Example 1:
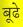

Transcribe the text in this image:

बूढे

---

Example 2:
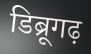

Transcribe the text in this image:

डिब्रूगढ़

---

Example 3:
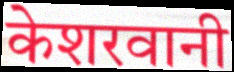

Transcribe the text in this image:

केशरवानी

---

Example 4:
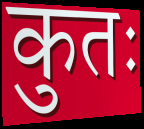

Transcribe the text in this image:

कुतः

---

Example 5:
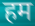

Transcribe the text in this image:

हम